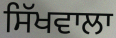
ਸਿੱਖਵਾਲਾ